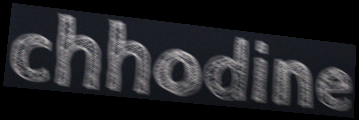
chhodine